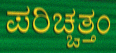
ಪರಿಚ್ಚತ್ತಂ